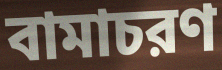
বামাচরণ